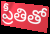
ప్రీతితో